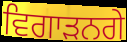
ਵਿਗਾੜਨਗੇ